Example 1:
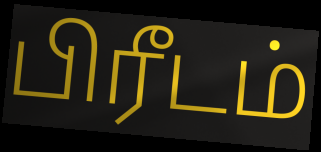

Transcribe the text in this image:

பிரீடம்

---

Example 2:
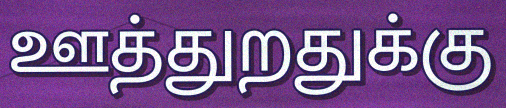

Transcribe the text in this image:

ஊத்துறதுக்கு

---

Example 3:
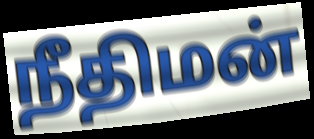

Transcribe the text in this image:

நீதிமன்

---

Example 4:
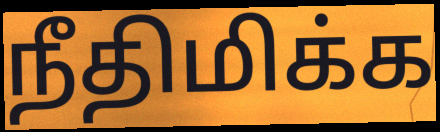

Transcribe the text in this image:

நீதிமிக்க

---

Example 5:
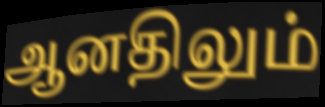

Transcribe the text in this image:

ஆனதிலும்